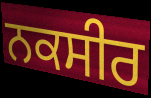
ਨਕਸੀਰ